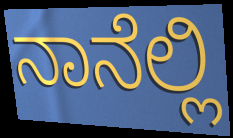
ನಾನೆಲ್ಲಿ